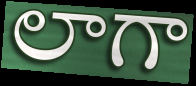
లాగా